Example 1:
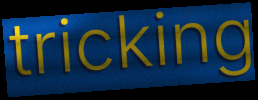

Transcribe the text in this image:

tricking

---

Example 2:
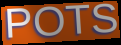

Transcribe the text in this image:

POTS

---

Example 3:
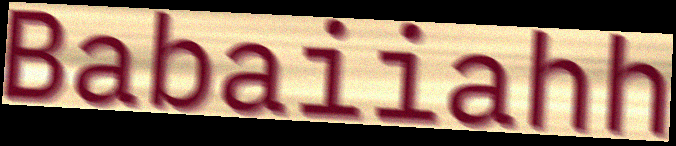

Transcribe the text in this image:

Babaiiahh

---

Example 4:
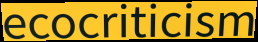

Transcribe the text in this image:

ecocriticism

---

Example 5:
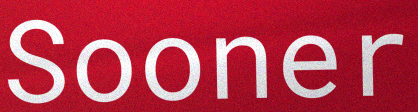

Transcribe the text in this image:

Sooner